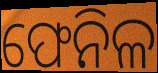
ଫେନିଳ